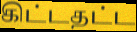
கிட்டதட்ட